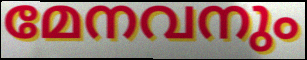
മേനവനും